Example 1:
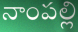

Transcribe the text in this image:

నాంపల్లి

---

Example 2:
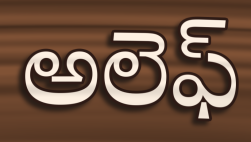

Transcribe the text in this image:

అలెఫ్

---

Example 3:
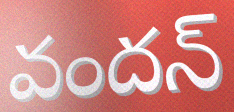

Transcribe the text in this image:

వందన్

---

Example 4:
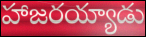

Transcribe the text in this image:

హాజరయ్యాడు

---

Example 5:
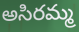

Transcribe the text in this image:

అసిరమ్మ